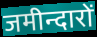
जमीन्दारों